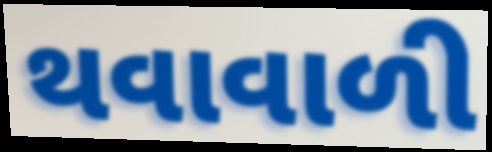
થવાવાળી